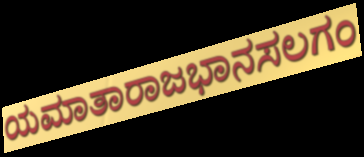
ಯಮಾತಾರಾಜಭಾನಸಲಗಂ